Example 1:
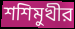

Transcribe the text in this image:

শশিমুখীর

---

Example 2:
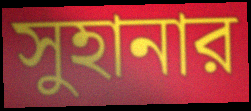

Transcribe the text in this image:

সুহানার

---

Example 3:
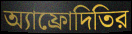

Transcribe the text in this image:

অ্যাফ্রোদিতির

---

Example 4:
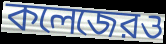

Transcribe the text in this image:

কলেজেরও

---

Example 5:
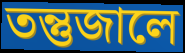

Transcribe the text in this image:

তন্তুজালে